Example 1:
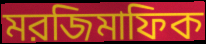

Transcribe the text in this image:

মরজিমাফিক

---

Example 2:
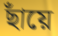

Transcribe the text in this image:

ছাঁয়ে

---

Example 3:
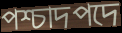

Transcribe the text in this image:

পশ্চাদপদে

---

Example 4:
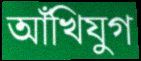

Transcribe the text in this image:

আঁখিযুগ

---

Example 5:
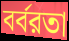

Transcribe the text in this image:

বর্বরতা